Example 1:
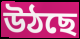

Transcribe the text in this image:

উঠছে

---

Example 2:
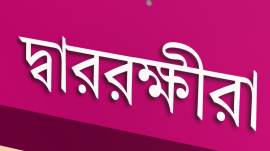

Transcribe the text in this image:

দ্বাররক্ষীরা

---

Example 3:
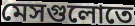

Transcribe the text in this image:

মেসগুলোতে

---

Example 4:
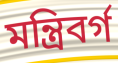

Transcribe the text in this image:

মন্ত্রিবর্গ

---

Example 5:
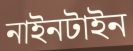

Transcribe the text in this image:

নাইনটাইন